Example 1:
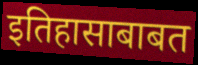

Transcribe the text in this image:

इतिहासाबाबत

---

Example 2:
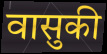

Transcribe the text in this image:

वासुकी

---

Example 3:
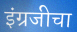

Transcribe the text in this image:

इंग्रजीचा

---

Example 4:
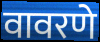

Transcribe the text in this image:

वावरणे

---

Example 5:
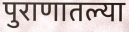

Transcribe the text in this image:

पुराणातल्या